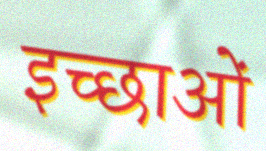
इच्छाओं